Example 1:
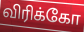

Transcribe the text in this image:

விரிக்கோ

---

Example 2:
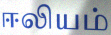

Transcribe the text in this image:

ஈலியம்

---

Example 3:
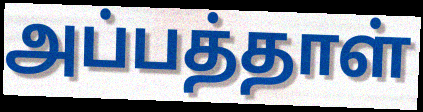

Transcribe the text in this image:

அப்பத்தாள்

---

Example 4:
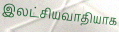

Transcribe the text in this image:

இலட்சியவாதியாக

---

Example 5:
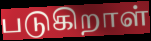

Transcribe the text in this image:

படுகிறாள்